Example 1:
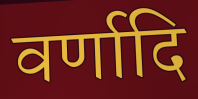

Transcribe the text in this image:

वर्णादि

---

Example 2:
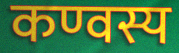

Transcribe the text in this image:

कण्वस्य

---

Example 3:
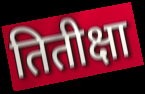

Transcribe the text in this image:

तितीक्षा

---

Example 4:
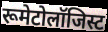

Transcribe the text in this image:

रूमेटोलॉजिस्ट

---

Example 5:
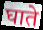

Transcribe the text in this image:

घाते